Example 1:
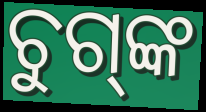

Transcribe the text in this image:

ଚୁଗ୍‌ଙ୍କ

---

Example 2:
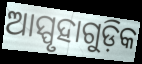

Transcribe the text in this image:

ଆସ୍ପୃହାଗୁଡ଼ିକ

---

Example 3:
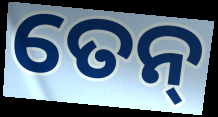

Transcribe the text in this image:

ତେନ୍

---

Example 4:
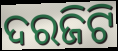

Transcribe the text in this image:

ଦରଜିଟି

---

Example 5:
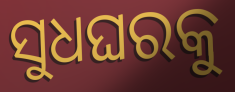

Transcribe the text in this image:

ସୁଧଘରକୁ